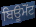
ਬਿਊਮੋਂਟ